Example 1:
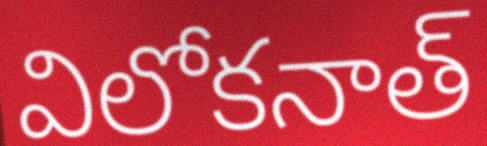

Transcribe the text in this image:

విలోకనాత్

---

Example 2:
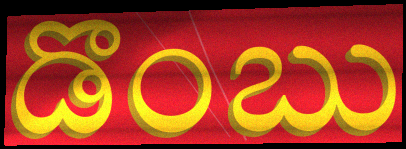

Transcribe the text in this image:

డొంబు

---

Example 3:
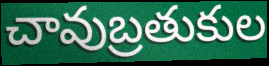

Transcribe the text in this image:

చావుబ్రతుకుల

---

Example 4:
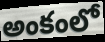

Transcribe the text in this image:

అంకంలో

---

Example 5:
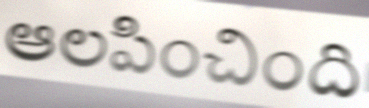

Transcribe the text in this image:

ఆలపించింది